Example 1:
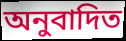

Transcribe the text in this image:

অনুবাদিত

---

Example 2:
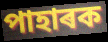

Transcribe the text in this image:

পাহাৰক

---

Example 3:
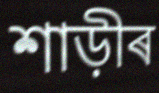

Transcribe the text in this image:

শাড়ীৰ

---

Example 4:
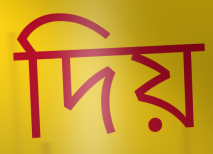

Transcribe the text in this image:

দিয়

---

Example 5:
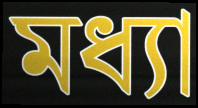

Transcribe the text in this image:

মধ্যা